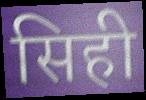
सिही